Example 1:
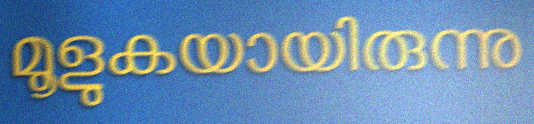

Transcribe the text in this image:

മൂളുകയായിരുന്നു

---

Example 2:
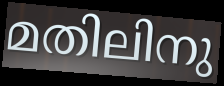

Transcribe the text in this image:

മതിലിനു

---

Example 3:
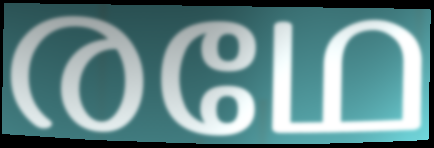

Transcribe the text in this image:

രഥേ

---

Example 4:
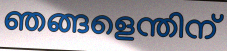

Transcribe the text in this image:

ഞങ്ങളെന്തിന്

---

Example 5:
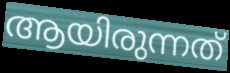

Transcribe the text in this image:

ആയിരുന്നത്